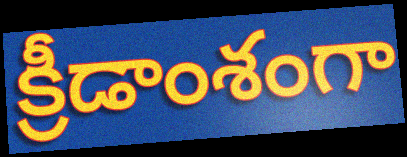
క్రీడాంశంగా